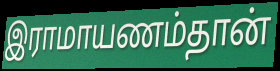
இராமாயணம்தான்